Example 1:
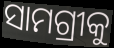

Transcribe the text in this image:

ସାମଗ୍ରୀକୁ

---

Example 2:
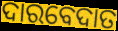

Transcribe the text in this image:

ଦାରବେଦାତ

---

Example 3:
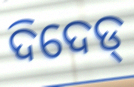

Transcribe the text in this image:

ଦିଦେଡ୍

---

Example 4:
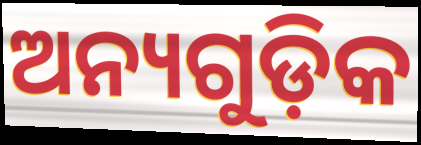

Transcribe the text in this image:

ଅନ୍ୟଗୁଡ଼ିକ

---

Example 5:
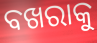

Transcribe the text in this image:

ବଖରାକୁ